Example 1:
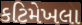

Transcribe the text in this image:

કટિમેખલા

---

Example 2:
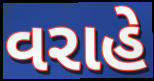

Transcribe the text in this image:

વરાહે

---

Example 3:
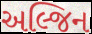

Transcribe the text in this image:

અલ્જિન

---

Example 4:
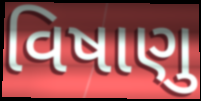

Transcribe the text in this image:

વિષાણુ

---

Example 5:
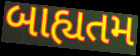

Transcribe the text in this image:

બાહ્યતમ